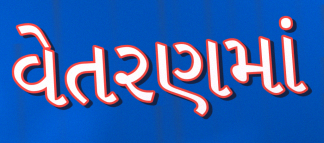
વેતરણમાં